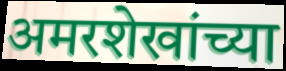
अमरशेखांच्या